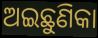
ଅଇଛୁଣିକା